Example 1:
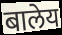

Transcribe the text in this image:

बालेय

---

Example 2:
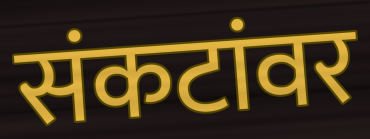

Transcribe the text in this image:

संकटांवर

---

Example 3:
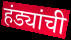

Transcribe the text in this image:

हंड्यांची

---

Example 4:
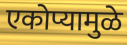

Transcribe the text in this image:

एकोप्यामुळे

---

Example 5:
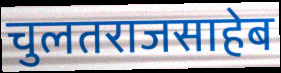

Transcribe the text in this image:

चुलतराजसाहेब